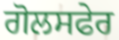
ਗੋਲਸਫੇਰ